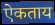
ऐकताय